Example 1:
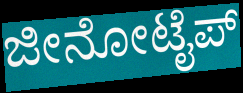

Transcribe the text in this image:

ಜೀನೋಟೈಪ್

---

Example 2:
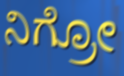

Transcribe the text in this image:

ನಿಗ್ರೋ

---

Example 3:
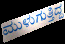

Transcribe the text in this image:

ಮುಳುಗುತ್ತಿದ್ದ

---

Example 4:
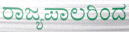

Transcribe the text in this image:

ರಾಜ್ಯಪಾಲರಿಂದ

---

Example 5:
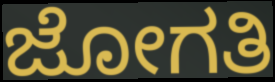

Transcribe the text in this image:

ಜೋಗತಿ